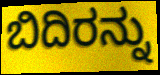
ಬಿದಿರನ್ನು